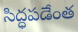
సిద్ధపడేంత